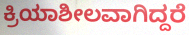
ಕ್ರಿಯಾಶೀಲವಾಗಿದ್ದರೆ